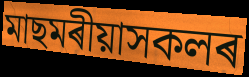
মাছমৰীয়াসকলৰ